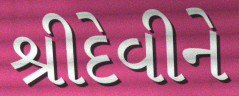
શ્રીદેવીને